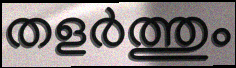
തളർത്തും